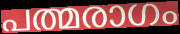
പത്മരാഗം